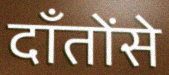
दाँतोंसे